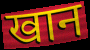
खान